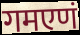
गमएणं